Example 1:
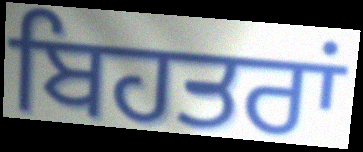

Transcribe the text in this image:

ਬਿਹਤਰਾਂ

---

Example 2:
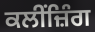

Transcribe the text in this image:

ਕਲੀਂਜ਼ਿੰਗ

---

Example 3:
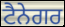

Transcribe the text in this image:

ਟੈਨੇਗਰ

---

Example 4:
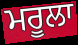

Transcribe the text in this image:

ਮਰੂਲਾ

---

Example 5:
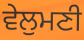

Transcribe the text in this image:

ਵੇਲੁਮਣੀ